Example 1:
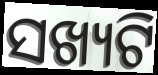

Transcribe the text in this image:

ସଖ୍ୟଟି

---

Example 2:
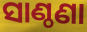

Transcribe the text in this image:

ସାଣ୍ଠଣା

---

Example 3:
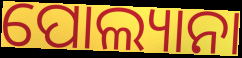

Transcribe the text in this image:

ପୋଲ୍ୟାନା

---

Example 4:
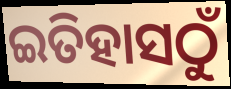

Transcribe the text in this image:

ଇତିହାସଠୁଁ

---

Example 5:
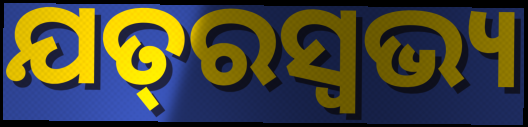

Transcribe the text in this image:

ଯତ୍‌ରସ୍ଵଭ୍ୟ